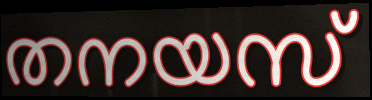
തനയസ്